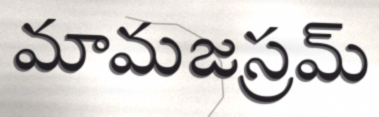
మామజస్రమ్